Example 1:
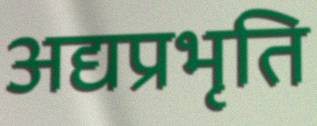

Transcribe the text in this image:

अद्यप्रभृति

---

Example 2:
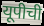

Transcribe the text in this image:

यूपीची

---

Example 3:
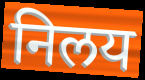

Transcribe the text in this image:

निलय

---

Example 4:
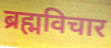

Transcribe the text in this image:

ब्रह्मविचार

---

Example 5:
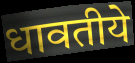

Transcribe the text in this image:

धावतीये